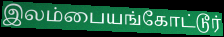
இலம்பையங்கோட்டூர்